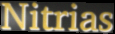
Nitrias